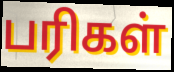
பரிகள்